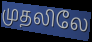
முதலிலே